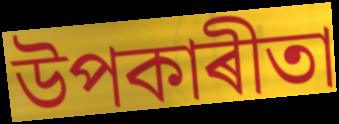
উপকাৰীতা